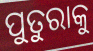
ପୁତୁରାକୁ